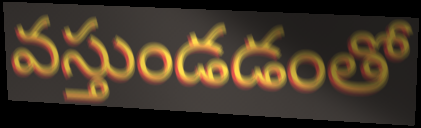
వస్తుండడంతో